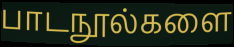
பாடநூல்களை